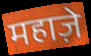
महाज़े